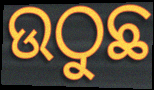
ଉଠୁଛ